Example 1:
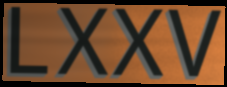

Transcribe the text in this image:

LXXV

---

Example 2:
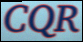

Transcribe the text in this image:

CQR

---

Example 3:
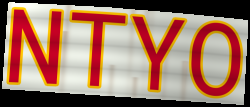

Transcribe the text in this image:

NTYO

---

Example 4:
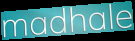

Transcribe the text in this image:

madhale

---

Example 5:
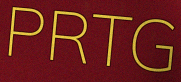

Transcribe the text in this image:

PRTG